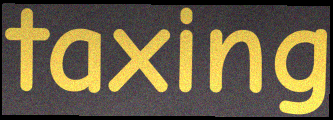
taxing